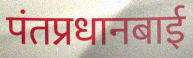
पंतप्रधानबाई